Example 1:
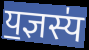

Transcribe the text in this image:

य॒ज्ञस्य॑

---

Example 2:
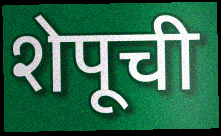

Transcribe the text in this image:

शेपूची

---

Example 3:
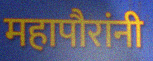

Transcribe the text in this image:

महापौरांनी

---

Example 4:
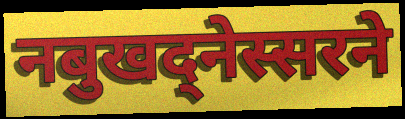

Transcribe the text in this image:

नबुखद्नेस्सरने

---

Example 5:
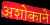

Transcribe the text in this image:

अशोकाने